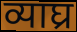
व्याघ्र